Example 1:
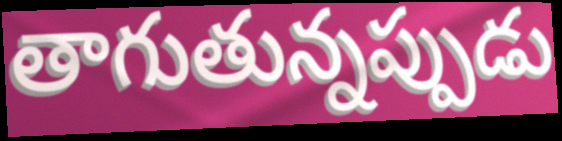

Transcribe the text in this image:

తాగుతున్నప్పుడు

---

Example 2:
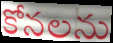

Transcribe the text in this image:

కోనలను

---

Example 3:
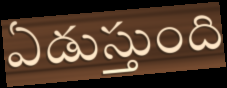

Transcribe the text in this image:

ఏడుస్తుంది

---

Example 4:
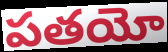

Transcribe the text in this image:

పతయో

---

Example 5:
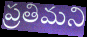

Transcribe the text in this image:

ప్రతిమని